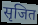
सृजित